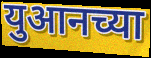
युआनच्या